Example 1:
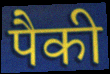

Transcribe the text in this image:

पैकी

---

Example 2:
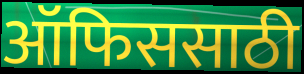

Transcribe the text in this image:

ऑफिससाठी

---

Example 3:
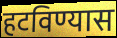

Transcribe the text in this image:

हटविण्यास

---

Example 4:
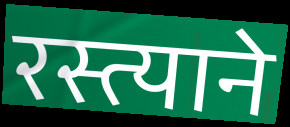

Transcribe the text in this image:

रस्त्याने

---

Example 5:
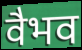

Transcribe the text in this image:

वैभव